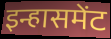
इन्हासमेंट